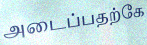
அடைப்பதற்கே